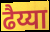
ढैय्या